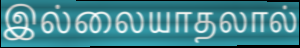
இல்லையாதலால்